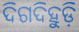
ଦିଗଦିହୁଡ଼ି